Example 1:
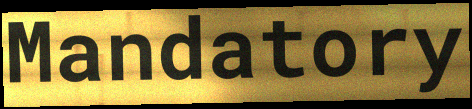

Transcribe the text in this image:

Mandatory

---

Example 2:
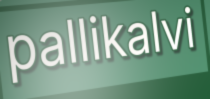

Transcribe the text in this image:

pallikalvi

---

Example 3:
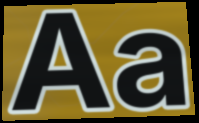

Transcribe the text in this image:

Aa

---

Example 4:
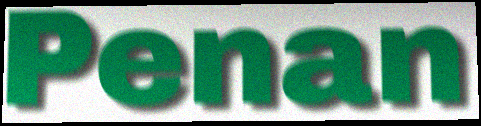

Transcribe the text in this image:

Penan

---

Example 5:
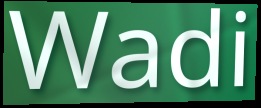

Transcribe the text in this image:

Wadi